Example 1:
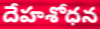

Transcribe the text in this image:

దేహశోధన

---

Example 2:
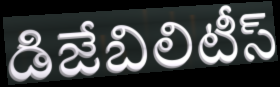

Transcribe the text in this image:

డిజేబిలిటీస్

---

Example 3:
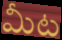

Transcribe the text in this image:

మీట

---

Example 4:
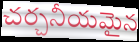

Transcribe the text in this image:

చర్చనీయమైన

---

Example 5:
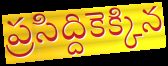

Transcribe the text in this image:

ప్రసిద్దికెక్కిన